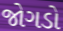
જોગડો